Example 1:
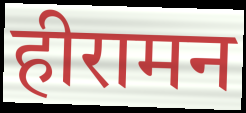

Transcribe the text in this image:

हीरामन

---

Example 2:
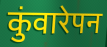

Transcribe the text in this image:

कुंवारेपन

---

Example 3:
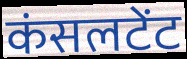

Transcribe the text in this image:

कंसलटेंट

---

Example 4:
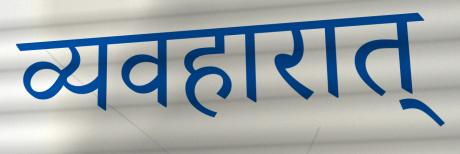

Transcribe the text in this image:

व्यवहारात्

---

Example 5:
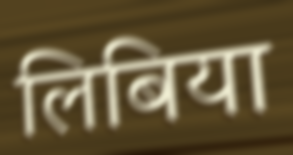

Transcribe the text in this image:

लिबिया